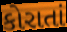
કોરાતાં